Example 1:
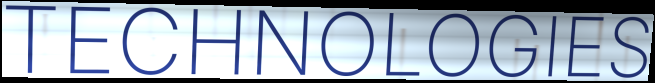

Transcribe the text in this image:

TECHNOLOGIES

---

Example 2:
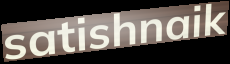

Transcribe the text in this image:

satishnaik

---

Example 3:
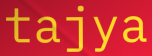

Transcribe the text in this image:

tajya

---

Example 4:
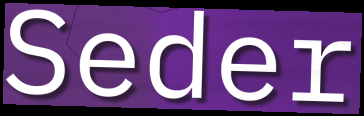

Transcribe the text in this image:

Seder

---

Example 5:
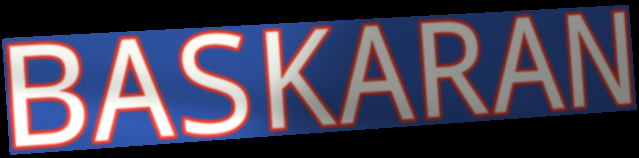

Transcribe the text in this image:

BASKARAN